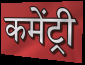
कमेंट्री